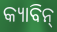
କ୍ୟାବିନ୍